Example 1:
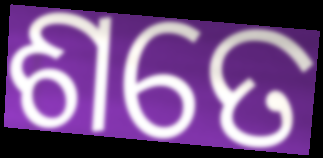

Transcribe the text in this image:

ଶତେ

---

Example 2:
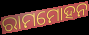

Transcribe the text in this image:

ରାମମୋହନ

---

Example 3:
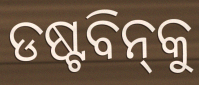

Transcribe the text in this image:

ଡଷ୍ଟବିନ୍‌କୁ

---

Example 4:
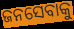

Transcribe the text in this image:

ଜନସେବାକୁ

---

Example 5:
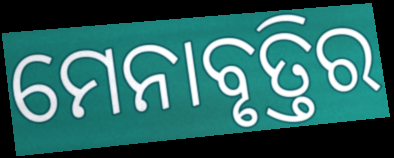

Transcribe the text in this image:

ମେନାବୃତ୍ତିର